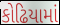
કોઢિયામાં